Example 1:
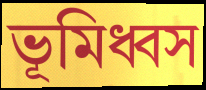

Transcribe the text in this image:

ভূমিধ্বস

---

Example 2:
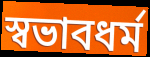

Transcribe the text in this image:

স্বভাবধর্ম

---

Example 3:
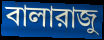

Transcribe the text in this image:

বালারাজু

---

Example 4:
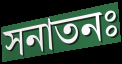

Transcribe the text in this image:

সনাতনঃ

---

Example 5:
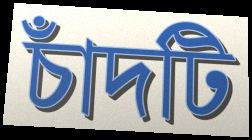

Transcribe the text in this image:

চাঁদটি